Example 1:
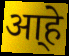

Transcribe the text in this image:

आ्हे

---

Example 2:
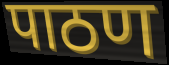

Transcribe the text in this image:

पाठण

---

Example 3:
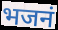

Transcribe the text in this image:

भजनं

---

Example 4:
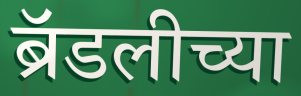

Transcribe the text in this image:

ब्रॅडलीच्या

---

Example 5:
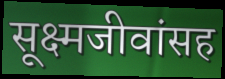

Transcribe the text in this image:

सूक्ष्मजीवांसह